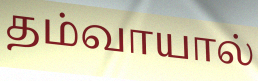
தம்வாயால்